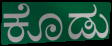
ಕೊಡು